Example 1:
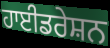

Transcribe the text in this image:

ਹਾਈਡਰੇਸ਼ਨ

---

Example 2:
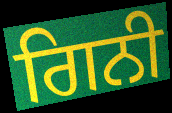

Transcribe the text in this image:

ਗਿਨੀ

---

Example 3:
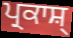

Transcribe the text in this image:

ਪ੍ਰਕਾਸ਼੍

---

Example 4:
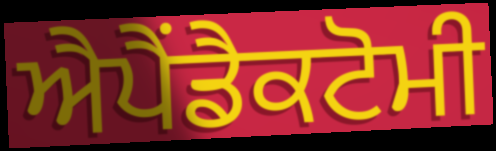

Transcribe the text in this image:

ਐਪੈਂਡੈਕਟੋਮੀ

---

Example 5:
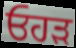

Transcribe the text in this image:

ਓਹੜ